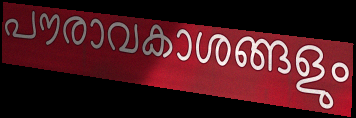
പൗരാവകാശങ്ങളും